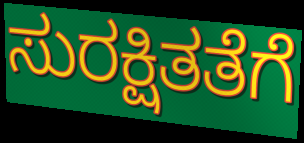
ಸುರಕ್ಷಿತತೆಗೆ